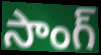
సాంగ్